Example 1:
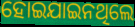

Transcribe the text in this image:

ହୋଇଯାଇନଥିଲେ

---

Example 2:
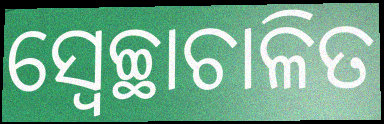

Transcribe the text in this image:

ସ୍ୱେଚ୍ଛାଚାଳିତ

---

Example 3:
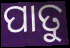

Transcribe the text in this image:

ପାତୁ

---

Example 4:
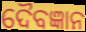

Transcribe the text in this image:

ଦୈବଜ୍ଞାନ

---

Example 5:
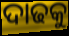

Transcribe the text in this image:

ଦାଢକୁ